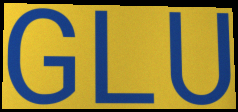
GLU